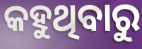
କହୁଥିବାରୁ